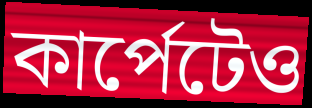
কার্পেটেও